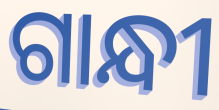
ଗାନ୍ଧୀ